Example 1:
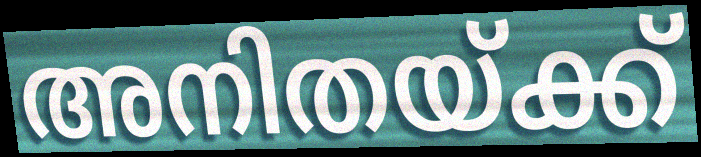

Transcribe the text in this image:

അനിതയ്ക്ക്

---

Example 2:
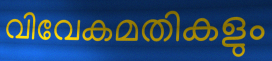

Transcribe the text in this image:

വിവേകമതികളും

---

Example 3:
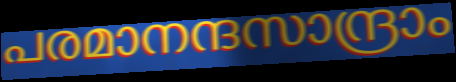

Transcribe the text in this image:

പരമാനന്ദസാന്ദ്രാം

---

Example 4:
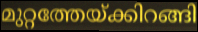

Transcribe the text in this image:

മുറ്റത്തേയ്ക്കിറങ്ങി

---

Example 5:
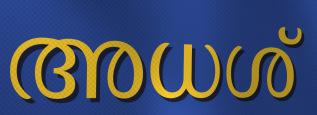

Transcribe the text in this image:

അധശ്